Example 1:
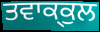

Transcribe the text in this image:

ਤਵਾਕ੍ਕੁਲ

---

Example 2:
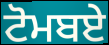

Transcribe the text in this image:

ਟੋਮਬਏ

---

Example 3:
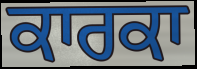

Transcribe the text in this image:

ਕਾਰਕਾ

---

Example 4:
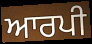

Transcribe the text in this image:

ਆਰਪੀ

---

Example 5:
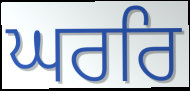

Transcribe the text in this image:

ਘਰਰਿ